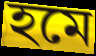
হমে